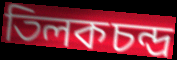
তিলকচন্দ্র